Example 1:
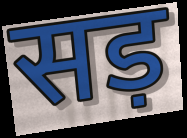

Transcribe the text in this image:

सड़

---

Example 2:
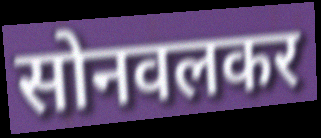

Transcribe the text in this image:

सोनवलकर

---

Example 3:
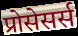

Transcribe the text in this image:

प्रोसेसर्स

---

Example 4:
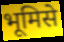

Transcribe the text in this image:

भूमिसे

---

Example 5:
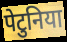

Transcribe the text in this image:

पेटुनिया